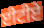
ਈਟੀਏ